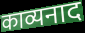
काव्यनाद